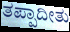
ತಪ್ಪಾದೀತು